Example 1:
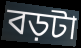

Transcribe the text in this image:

বড়টা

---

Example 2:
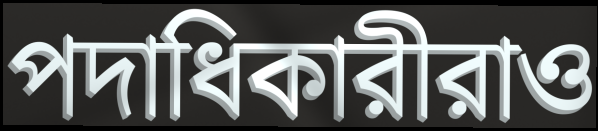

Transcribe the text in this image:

পদাধিকারীরাও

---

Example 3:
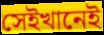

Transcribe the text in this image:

সেইখানেই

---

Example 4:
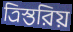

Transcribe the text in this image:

ত্রিস্তরিয়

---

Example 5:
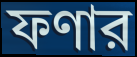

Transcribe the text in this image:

ফণার